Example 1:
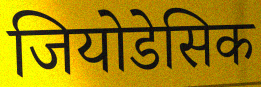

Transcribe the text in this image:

जियोडेसिक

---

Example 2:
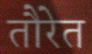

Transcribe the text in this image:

तौरेत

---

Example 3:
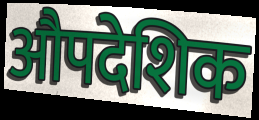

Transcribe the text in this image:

औपदेशिक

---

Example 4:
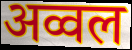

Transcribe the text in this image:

अव्वल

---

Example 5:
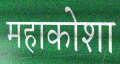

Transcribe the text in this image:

महाकोशा